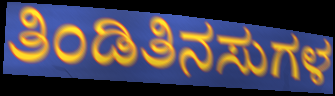
ತಿಂಡಿತಿನಸುಗಳ